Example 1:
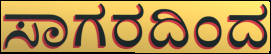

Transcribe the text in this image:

ಸಾಗರದಿಂದ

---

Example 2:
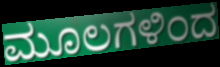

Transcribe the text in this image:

ಮೂಲಗಳಿಂದ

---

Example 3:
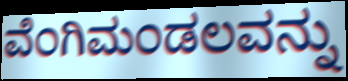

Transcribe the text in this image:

ವೆಂಗಿಮಂಡಲವನ್ನು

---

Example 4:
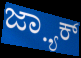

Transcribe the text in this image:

ಜ಼್ಯಾಕ್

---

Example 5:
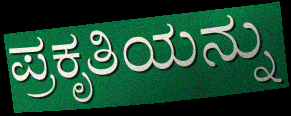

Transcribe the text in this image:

ಪ್ರಕೃತಿಯನ್ನು